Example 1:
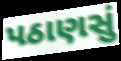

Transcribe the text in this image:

પઠાણસું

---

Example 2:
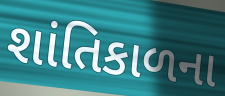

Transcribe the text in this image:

શાંતિકાળના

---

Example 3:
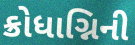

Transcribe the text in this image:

ક્રોધાગ્નિની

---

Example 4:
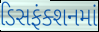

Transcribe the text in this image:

ડિસફંક્શનમાં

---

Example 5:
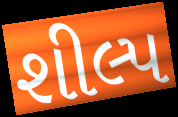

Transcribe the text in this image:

શીલ્પ